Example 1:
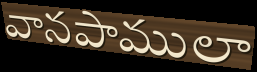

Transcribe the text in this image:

వానపాములా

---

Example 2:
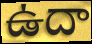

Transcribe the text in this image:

ఉదా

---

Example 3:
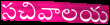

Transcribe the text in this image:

సచివాలయ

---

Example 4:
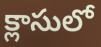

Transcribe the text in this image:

క్లాసులో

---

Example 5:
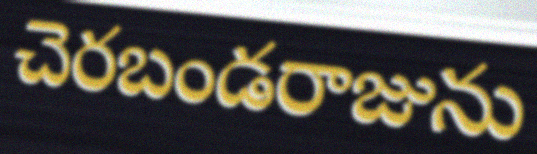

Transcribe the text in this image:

చెరబండరాజును